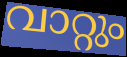
വാറ്റും